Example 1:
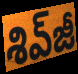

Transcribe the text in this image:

శివ్‌జీ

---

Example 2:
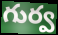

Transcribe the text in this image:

గుర్వ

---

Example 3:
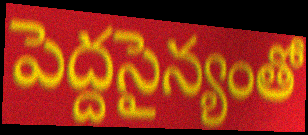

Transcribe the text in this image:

పెద్దసైన్యంతో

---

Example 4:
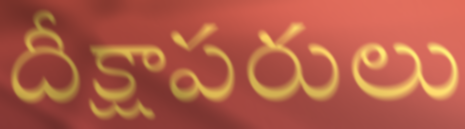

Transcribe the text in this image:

దీక్షాపరులు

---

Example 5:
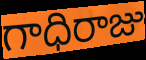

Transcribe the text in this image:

గాధిరాజు